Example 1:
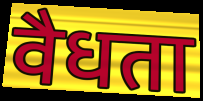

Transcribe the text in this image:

वैधता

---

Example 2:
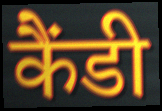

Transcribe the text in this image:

कैंडी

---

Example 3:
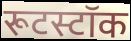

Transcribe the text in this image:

रूटस्टॉक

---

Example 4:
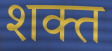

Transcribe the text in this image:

शक्त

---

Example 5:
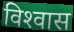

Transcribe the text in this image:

विश्‍वास